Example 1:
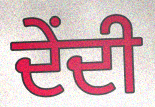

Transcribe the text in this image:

ਦੇਂਦੀ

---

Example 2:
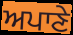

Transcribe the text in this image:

ਅਪਾਣੇ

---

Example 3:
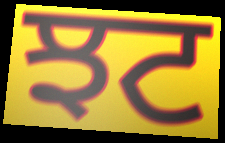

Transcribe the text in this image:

ਝਟ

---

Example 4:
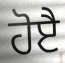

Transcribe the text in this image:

ਹੋੲੈ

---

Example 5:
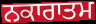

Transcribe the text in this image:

ਨਕਾਰਾਤਮ